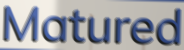
Matured